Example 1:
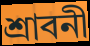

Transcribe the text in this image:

শ্রাবনী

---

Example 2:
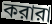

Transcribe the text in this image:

করারা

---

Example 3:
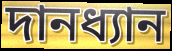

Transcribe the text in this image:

দানধ্যান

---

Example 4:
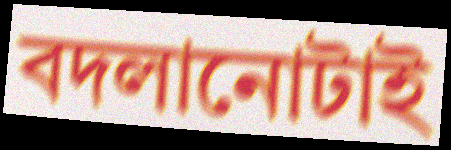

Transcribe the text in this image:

বদলানোটাই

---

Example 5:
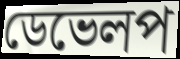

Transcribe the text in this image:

ডেভেলপ